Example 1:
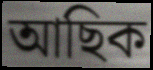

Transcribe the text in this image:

আছিক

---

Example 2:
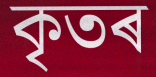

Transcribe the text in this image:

কৃতৰ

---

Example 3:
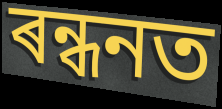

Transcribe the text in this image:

ৰন্ধনত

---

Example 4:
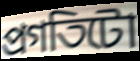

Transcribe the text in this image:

প্ৰগতিটো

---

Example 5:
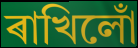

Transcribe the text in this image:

ৰাখিলোঁ